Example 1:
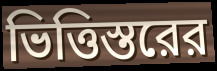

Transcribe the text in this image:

ভিত্তিস্তরের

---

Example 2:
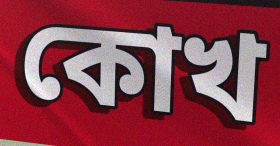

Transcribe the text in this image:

কোখ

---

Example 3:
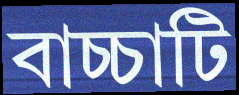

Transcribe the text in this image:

বাচ্চাটি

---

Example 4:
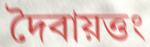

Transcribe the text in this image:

দৈবায়ত্তং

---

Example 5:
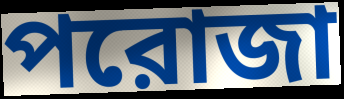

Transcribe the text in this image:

পরোজা